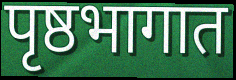
पृष्ठभागात